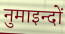
नुमाइन्दों